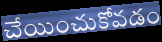
చేయించుకోవడం